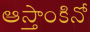
ఆస్తాంకినో